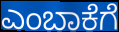
ಎಂಬಾಕೆಗೆ